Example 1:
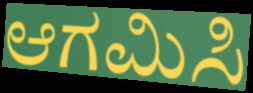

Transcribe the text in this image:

ಆಗಮಿಸಿ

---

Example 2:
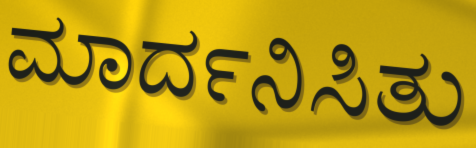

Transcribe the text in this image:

ಮಾರ್ದನಿಸಿತು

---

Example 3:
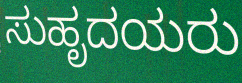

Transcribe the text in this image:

ಸುಹೃದಯರು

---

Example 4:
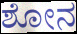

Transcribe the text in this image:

ಶೋನ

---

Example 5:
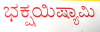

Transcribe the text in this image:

ಭಕ್ಷಯಿಷ್ಯಾಮಿ